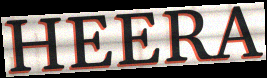
HEERA